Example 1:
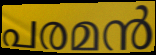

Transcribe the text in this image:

പരമൻ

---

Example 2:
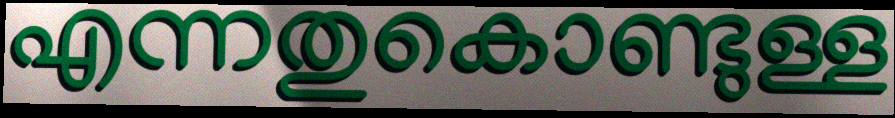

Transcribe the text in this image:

എന്നതുകൊണ്ടുള്ള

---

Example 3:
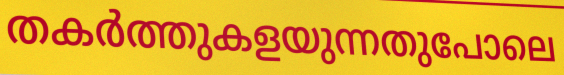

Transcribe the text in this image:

തകർത്തുകളയുന്നതുപോലെ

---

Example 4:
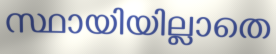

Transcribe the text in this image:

സ്ഥായിയില്ലാതെ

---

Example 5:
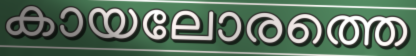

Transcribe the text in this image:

കായലോരത്തെ